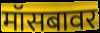
मॉसबावर